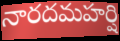
నారదమహర్షి